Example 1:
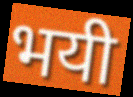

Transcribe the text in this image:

भयी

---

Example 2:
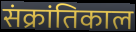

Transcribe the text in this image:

संक्रांतिकाल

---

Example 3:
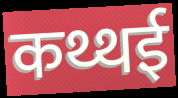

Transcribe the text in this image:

कथ्थई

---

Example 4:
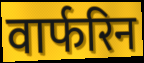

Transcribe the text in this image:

वार्फरिन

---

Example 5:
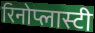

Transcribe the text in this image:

रिनोप्लास्टी